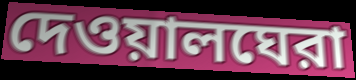
দেওয়ালঘেরা